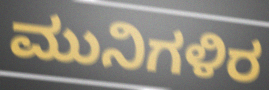
ಮುನಿಗಳಿರ